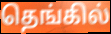
தெங்கில்